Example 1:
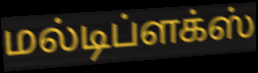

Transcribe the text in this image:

மல்டிப்ளக்ஸ்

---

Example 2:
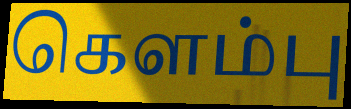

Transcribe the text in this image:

கௌம்பு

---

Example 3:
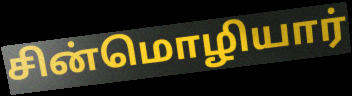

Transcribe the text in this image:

சின்மொழியார்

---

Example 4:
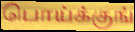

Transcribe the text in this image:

பொய்க்குங்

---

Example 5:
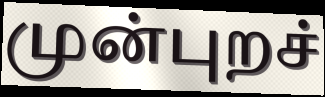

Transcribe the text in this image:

முன்புறச்